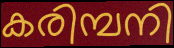
കരിമ്പനി